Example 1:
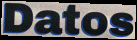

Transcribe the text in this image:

Datos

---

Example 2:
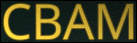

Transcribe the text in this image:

CBAM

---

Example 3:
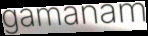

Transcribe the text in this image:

gamanam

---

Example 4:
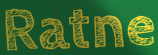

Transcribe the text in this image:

Ratne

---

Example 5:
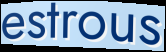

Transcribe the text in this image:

estrous